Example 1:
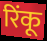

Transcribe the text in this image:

रिंकू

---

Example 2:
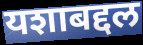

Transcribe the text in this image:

यशाबद्दल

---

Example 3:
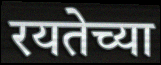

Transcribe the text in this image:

रयतेच्या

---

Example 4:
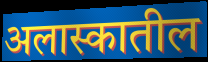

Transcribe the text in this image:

अलास्कातील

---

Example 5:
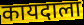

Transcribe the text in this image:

कायदाला